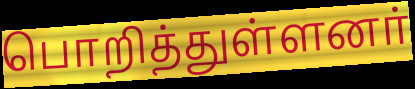
பொறித்துள்ளனர்